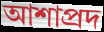
আশাপ্রদ